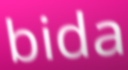
bida